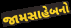
જામસાહેબનો